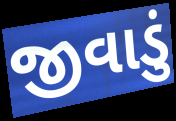
જીવાડું